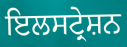
ਇਲਸਟ੍ਰੇਸ਼ਨ